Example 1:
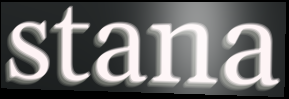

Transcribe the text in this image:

stana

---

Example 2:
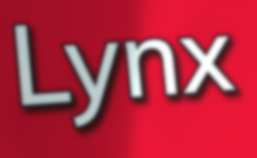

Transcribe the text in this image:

Lynx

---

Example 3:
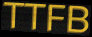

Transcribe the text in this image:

TTFB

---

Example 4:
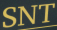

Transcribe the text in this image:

SNT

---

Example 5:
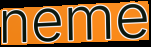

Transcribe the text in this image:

neme